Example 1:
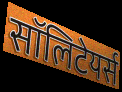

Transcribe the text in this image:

सॉलिटेयर्स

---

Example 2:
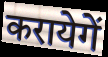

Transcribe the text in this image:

करायेगें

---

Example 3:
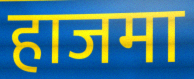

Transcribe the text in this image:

हाजमा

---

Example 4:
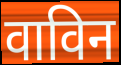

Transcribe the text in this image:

वाविन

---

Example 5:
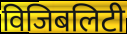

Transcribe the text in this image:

विजिबलिटी